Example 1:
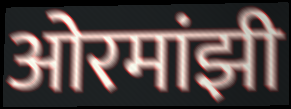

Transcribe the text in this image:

ओरमांझी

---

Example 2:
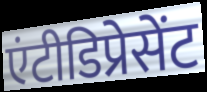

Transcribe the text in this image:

एंटीडिप्रेसेंट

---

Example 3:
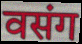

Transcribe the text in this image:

वसंग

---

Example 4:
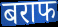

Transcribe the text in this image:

बराफ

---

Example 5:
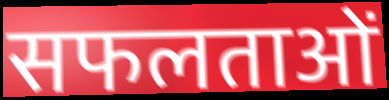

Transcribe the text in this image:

सफलताओं